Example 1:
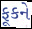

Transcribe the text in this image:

ફૂકને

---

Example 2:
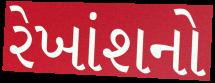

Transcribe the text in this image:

રેખાંશનો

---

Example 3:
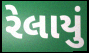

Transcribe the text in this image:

રેલાયું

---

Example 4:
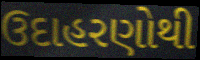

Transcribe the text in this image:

ઉદાહરણોથી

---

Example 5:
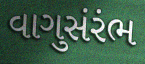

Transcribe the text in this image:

વાગુસંરંભ